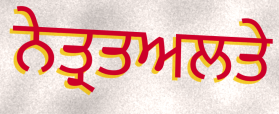
ਨੇਤ੍ਰਤਅਲਤੇ